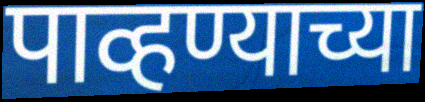
पाव्हण्याच्या